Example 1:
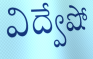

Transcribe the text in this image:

విద్వేషో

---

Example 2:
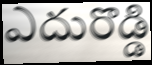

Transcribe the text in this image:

ఎదురొడ్డి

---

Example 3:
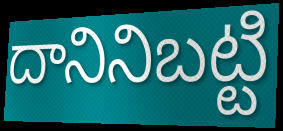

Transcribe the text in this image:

దానినిబట్టి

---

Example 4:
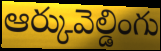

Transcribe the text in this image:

ఆర్కువెల్డింగు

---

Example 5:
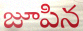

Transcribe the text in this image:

జూపిన